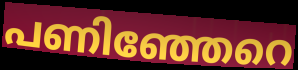
പണിഞ്ഞേറെ